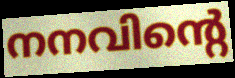
നനവിന്റെ